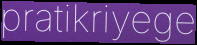
pratikriyege